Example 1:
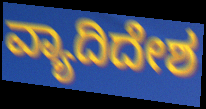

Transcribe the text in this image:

ವ್ಯಾದಿದೇಶ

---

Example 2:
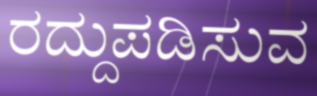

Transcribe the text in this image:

ರದ್ದುಪಡಿಸುವ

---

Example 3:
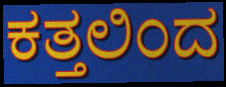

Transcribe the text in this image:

ಕತ್ತಲಿಂದ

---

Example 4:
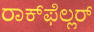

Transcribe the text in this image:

ರಾಕ್‌ಫೆಲ್ಲರ್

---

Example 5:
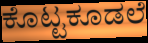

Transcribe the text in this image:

ಕೊಟ್ಟಕೂಡಲೆ